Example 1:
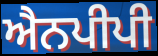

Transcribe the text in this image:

ਐਨਪੀਪੀ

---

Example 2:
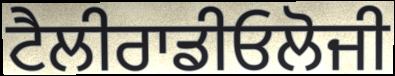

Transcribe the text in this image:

ਟੈਲੀਰਾਡੀਓਲੋਜੀ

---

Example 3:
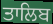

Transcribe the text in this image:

ਤਾਲਿਬ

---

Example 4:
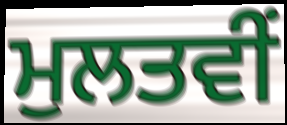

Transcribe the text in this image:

ਮੁਲਤਵੀਂ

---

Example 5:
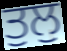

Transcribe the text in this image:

ਤੁਲੁ